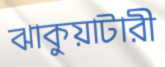
ঝাকুয়াটারী